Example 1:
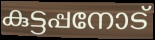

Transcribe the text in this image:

കുട്ടപ്പനോട്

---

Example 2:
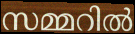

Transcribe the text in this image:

സമ്മറിൽ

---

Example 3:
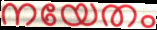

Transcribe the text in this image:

നയേതം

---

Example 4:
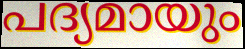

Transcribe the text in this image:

പദ്യമായും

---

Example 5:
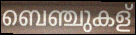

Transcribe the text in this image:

ബെഞ്ചുകള്